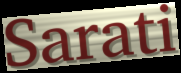
Sarati